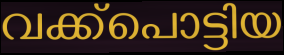
വക്ക്പൊട്ടിയ